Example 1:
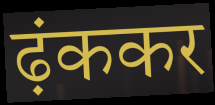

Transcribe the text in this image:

ढ़ंककर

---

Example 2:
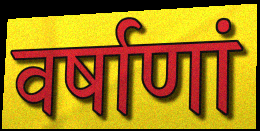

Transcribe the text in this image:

वर्षाणां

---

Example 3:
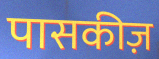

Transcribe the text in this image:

पासकीज़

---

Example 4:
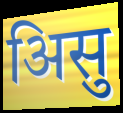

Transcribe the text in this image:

अिसु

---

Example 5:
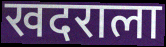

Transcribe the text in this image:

खदराला